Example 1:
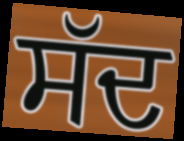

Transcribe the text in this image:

ਸੱਦ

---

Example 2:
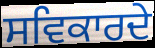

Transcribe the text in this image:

ਸਵਿਕਾਰਦੇ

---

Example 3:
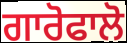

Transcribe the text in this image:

ਗਾਰੋਫਾਲੋ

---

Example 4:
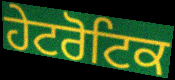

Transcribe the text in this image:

ਹੇਟਰੋਟਿਕ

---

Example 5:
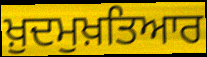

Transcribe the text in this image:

ਖ਼ੁਦਮੁਖ਼ਤਿਆਰ